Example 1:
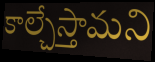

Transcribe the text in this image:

కాల్చేస్తామని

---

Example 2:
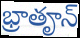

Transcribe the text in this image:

భ్రాతౄన్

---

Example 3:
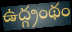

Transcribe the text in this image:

ఉద్గ్రంథం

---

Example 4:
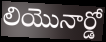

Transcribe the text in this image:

లియొనార్డో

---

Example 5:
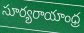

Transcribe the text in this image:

సూర్యరాయాంధ్ర